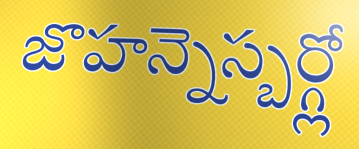
జొహన్నెస్బర్గ్లో